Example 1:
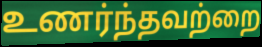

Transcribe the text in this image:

உணர்ந்தவற்றை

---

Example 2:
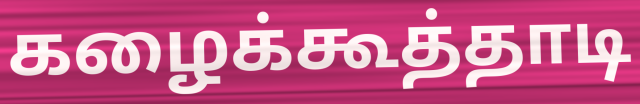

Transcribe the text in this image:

கழைக்கூத்தாடி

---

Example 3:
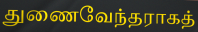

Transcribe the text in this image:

துணைவேந்தராகத்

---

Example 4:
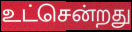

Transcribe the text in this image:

உட்சென்றது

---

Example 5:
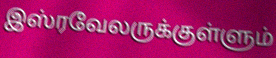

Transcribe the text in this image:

இஸ்ரவேலருக்குள்ளும்